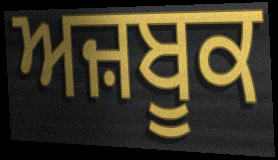
ਅਜ਼ਬੂਕ